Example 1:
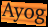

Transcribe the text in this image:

Ayog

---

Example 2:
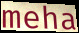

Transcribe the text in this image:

meha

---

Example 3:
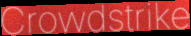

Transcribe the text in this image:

Crowdstrike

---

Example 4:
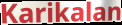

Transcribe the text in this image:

Karikalan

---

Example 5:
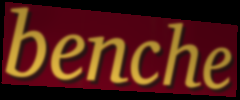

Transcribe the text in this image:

benche